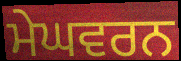
ਮੇਘਵਰਨ